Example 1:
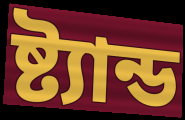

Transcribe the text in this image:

ষ্ট্যান্ড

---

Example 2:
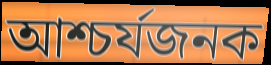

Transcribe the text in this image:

আশ্চর্যজনক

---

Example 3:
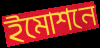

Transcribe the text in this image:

ইমোশনে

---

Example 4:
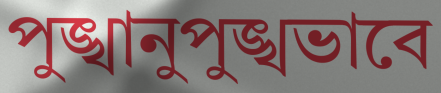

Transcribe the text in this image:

পুঙ্খানুপুঙ্খভাবে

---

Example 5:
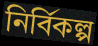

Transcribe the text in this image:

নির্বিকল্প